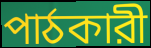
পাঠকারী